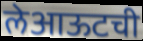
लेआऊटची